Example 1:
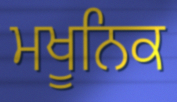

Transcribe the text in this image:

ਮਖੂਨਿਕ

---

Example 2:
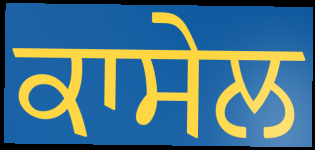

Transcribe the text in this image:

ਕਾਸੇਲ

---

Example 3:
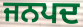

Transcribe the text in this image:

ਜਨਪਦ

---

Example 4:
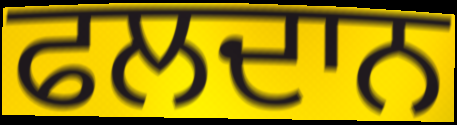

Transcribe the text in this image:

ਫਲਦਾਨ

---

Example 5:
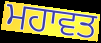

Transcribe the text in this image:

ਮਹਾਵਤ